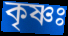
কৃষ্ণঃ